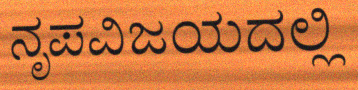
ನೃಪವಿಜಯದಲ್ಲಿ